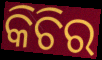
କିଚିର